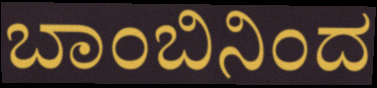
ಬಾಂಬಿನಿಂದ